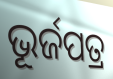
ଭୂର୍ଜପତ୍ର